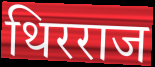
थिरराज